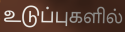
உடுப்புகளில்